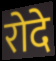
रोदे